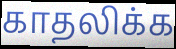
காதலிக்க